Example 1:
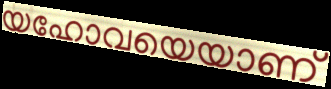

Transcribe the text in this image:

യഹോവയെയാണ്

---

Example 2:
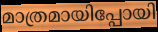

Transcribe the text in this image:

മാത്രമായിപ്പോയി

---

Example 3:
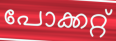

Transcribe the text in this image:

പോക്കറ്റ്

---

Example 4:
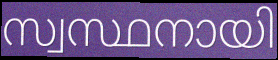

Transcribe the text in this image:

സ്വസ്ഥനായി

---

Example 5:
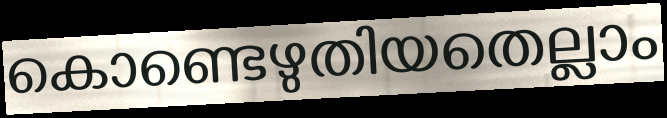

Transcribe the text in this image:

കൊണ്ടെഴുതിയതെല്ലാം